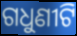
ଗଧୁଣୀଟି